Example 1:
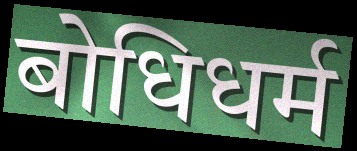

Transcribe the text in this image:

बोधिधर्म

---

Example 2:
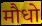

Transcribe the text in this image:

मौधो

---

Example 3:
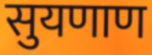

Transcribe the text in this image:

सुयणाण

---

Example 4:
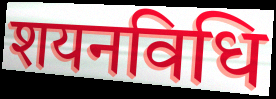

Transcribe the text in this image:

शयनविधि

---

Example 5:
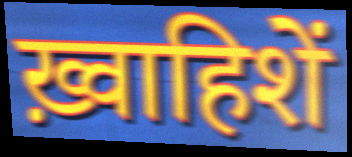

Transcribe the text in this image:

ख़्वाहिशें